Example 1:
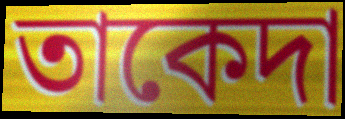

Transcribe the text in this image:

তাকেদা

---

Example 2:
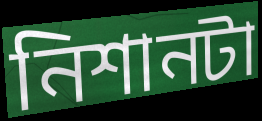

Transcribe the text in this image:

নিশানটা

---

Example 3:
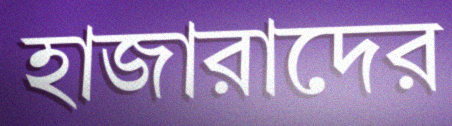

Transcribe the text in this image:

হাজারাদের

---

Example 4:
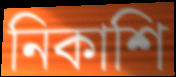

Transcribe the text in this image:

নিকাশি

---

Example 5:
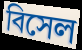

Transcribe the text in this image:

বিসেল